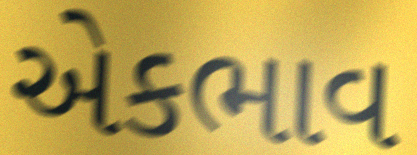
એકભાવ